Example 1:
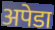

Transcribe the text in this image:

अपेडा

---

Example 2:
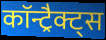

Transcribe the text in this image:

कॉन्ट्रैक्ट्स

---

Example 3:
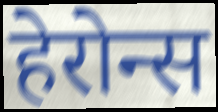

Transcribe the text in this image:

हेरोन्स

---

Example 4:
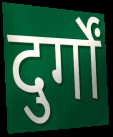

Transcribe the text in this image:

दुर्गों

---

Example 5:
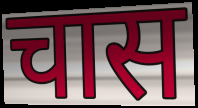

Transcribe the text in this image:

चास